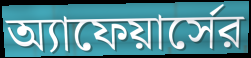
অ্যাফেয়ার্সের